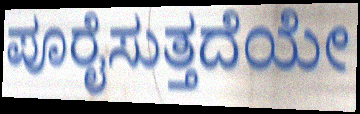
ಪೂರೈಸುತ್ತದೆಯೇ